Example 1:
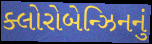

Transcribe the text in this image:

ક્લોરોબેન્ઝિનનું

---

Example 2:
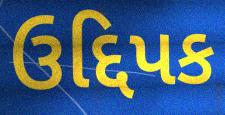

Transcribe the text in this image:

ઉદ્દિપક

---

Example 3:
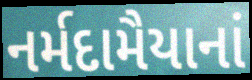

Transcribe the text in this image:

નર્મદામૈયાનાં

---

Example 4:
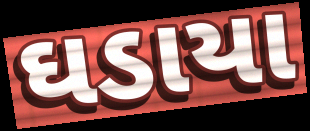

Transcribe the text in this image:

ઘડાયા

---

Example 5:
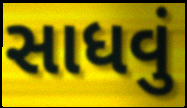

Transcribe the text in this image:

સાધવું